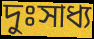
দুঃসাধ্য